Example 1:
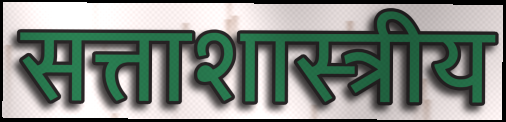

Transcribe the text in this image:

सत्ताशास्त्रीय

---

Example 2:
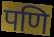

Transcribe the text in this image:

पणि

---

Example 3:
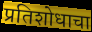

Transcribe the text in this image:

प्रतिशोधाचा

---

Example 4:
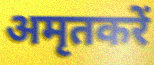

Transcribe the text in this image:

अमृतकरें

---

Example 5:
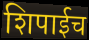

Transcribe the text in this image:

शिपाईच